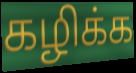
கழிக்க